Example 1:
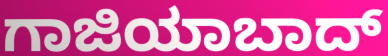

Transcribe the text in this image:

ಗಾಜಿಯಾಬಾದ್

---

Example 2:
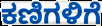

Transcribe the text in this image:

ಕಣಿಗಳಿಗೆ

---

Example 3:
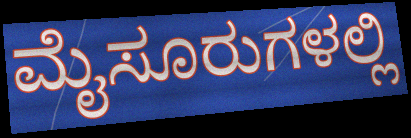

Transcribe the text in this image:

ಮೈಸೂರುಗಳಲ್ಲಿ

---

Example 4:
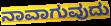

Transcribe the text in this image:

ನಾವಾಗುವುದು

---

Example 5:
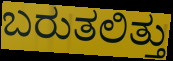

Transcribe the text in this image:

ಬರುತಲಿತ್ತು